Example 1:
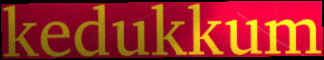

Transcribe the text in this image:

kedukkum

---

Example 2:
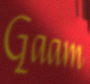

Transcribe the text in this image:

Gaam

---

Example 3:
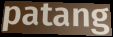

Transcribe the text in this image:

patang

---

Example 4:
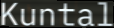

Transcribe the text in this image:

Kuntal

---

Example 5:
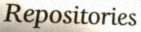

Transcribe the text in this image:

Repositories